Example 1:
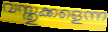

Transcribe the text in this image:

വസ്തുക്കളെന്ന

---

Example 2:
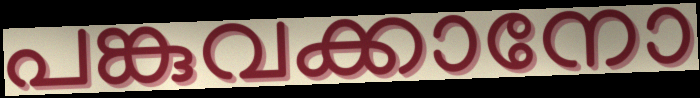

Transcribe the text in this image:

പങ്കുവക്കാനോ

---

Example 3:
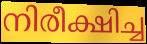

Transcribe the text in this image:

നിരീക്ഷിച്ച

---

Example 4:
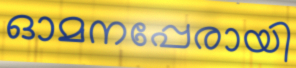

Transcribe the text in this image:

ഓമനപ്പേരായി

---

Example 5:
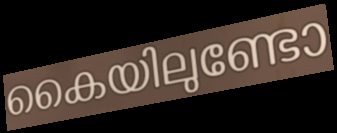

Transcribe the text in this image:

കൈയിലുണ്ടോ